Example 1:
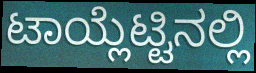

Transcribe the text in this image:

ಟಾಯ್ಲೆಟ್ಟಿನಲ್ಲಿ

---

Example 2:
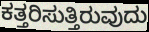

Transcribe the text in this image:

ಕತ್ತರಿಸುತ್ತಿರುವುದು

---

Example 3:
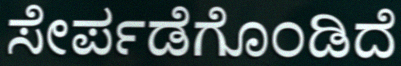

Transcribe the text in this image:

ಸೇರ್ಪಡೆಗೊಂಡಿದೆ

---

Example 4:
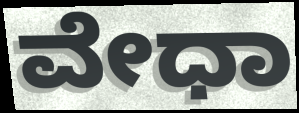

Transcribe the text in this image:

ವೇಧಾ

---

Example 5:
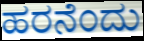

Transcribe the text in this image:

ಹರನೆಂದು